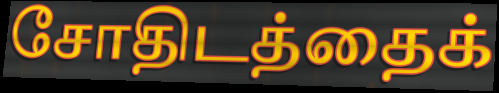
சோதிடத்தைக்